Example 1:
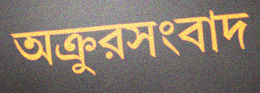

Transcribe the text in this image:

অক্রুরসংবাদ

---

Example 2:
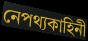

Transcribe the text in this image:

নেপথ্যকাহিনী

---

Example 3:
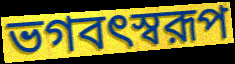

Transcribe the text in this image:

ভগবৎস্বরূপ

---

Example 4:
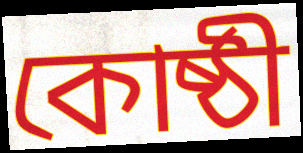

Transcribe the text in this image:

কোষ্ঠী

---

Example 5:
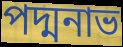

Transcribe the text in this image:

পদ্মনাভ